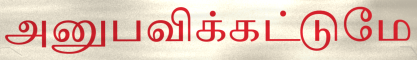
அனுபவிக்கட்டுமே